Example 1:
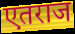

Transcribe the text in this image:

एतराज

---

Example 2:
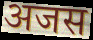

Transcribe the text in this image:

अजस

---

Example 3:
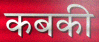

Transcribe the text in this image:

कबकी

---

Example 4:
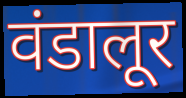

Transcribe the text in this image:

वंडालूर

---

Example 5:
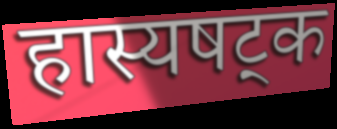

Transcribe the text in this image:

हास्यषट्क